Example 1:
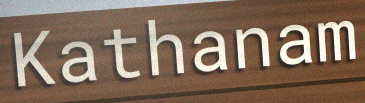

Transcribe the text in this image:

Kathanam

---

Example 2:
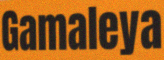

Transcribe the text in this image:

Gamaleya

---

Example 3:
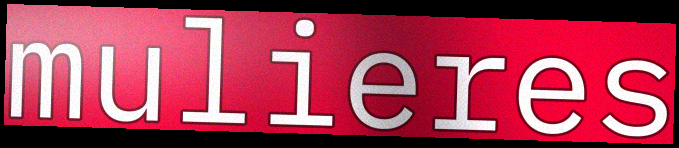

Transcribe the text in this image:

mulieres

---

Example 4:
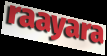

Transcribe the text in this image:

raayara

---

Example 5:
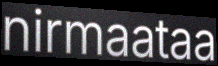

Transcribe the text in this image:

nirmaataa